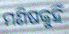
ମଣିଷକୁହିଁ